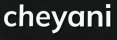
cheyani